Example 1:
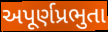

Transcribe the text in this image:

અપૂર્ણપ્રભુતા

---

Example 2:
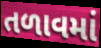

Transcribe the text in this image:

તળાવમાં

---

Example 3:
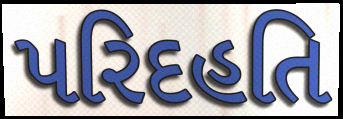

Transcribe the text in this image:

પરિદહતિ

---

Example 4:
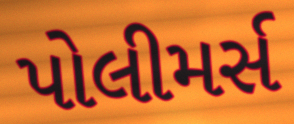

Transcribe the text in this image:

પોલીમર્સ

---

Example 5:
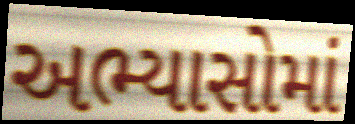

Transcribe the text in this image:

અભ્યાસોમાં